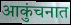
आकुंचनात